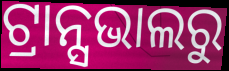
ଟ୍ରାନ୍ସଭାଲରୁ